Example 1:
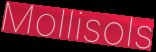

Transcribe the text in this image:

Mollisols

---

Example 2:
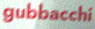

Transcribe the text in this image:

gubbacchi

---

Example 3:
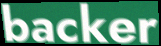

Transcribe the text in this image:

backer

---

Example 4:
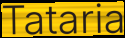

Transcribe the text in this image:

Tataria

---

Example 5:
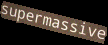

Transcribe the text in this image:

supermassive